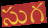
సుగ